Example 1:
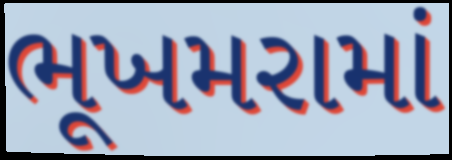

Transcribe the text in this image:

ભૂખમરામાં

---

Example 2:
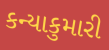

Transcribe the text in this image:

કન્યાકુમારી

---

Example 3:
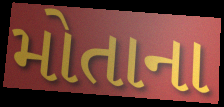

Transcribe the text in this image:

મોતાના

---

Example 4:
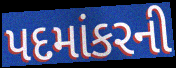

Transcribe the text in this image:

પદમાંકરની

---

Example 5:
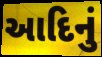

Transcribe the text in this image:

આદિનું